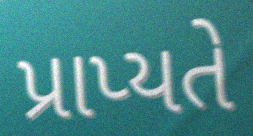
પ્રાપ્યતે